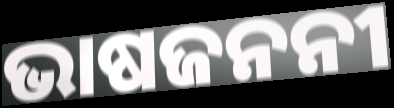
ଭାଷଜନନୀ